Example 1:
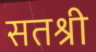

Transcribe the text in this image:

सतश्री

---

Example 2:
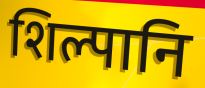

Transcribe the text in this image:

शिल्पानि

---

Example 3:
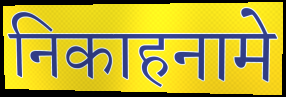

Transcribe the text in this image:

निकाहनामे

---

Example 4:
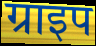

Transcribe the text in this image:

ग्राइप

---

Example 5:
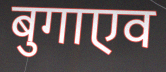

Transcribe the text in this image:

बुगाएव